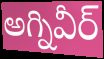
అగ్నివీర్